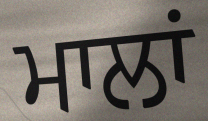
ਮਾਲਾਂ